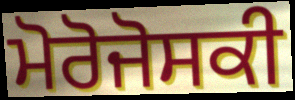
ਮੋਰੋਜੋਸਕੀ